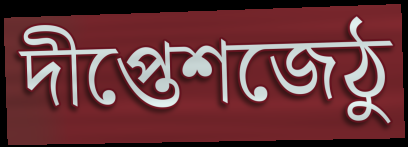
দীপ্তেশজেঠু